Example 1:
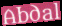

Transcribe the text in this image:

Abdal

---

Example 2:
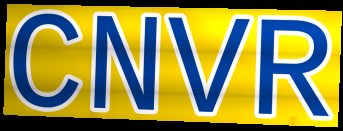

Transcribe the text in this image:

CNVR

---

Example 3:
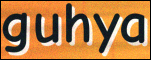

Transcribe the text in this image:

guhya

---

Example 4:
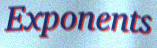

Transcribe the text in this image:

Exponents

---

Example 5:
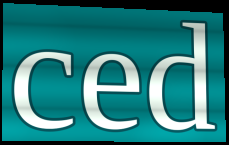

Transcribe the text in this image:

ced